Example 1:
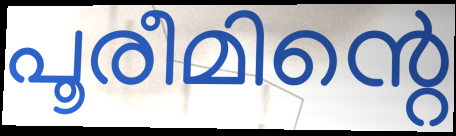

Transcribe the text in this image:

പൂരീമിന്റെ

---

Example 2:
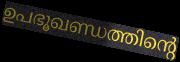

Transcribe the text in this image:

ഉപഭൂഖണ്ഡത്തിന്റെ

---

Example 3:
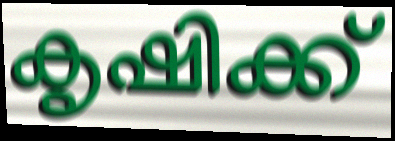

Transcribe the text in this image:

കൃഷിക്ക്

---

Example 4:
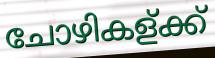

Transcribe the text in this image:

ചോഴികള്ക്ക്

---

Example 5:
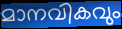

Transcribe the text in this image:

മാനവികവും